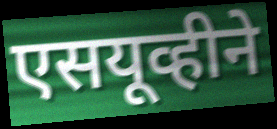
एसयूव्हीने